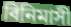
বিনিমাসী